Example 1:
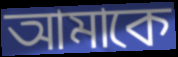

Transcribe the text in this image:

আমাকে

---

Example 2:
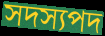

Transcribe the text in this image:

সদস্যপদ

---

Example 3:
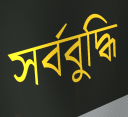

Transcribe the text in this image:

সৰ্ববুদ্ধি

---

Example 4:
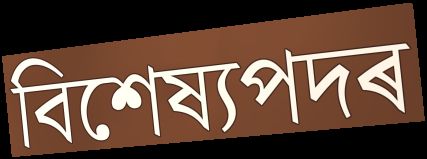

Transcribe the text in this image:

বিশেষ্যপদৰ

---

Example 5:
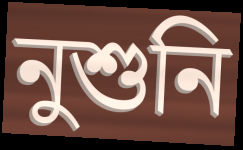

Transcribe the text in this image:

নুশুনি